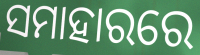
ସମାହାରରେ